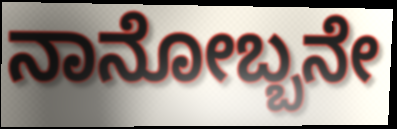
ನಾನೋಬ್ಬನೇ